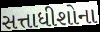
સત્તાધીશોના